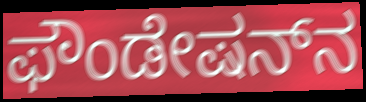
ಫೌಂಡೇಷನ್‌ನ